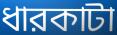
ধারকাটা